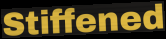
Stiffened